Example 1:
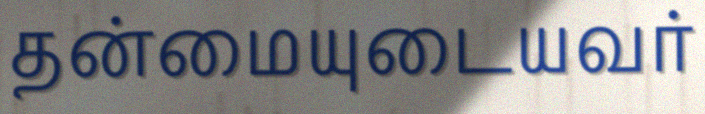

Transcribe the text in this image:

தன்மையுடையவர்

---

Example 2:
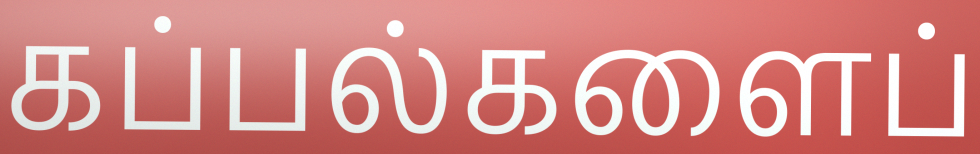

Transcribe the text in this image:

கப்பல்களைப்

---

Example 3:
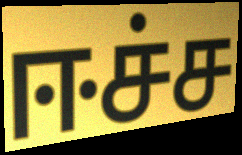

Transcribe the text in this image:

ஈச்ச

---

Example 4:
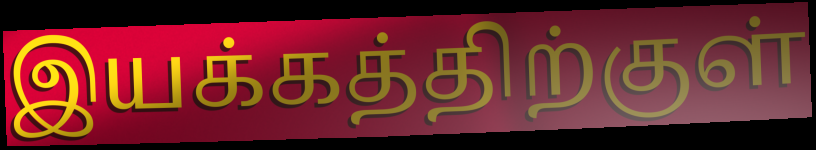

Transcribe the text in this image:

இயக்கத்திற்குள்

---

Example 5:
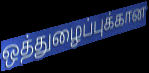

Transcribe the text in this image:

ஒத்துழைப்புக்கான